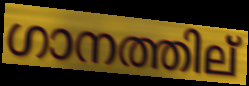
ഗാനത്തില്